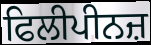
ਫਿਲੀਪੀਨਜ਼